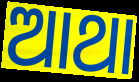
ଆଥା